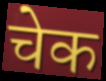
चेक